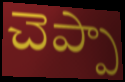
చెప్పా